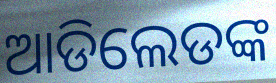
ଆଡିଲେଡଙ୍କ